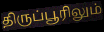
திருப்பூரிலும்